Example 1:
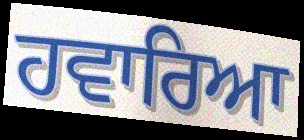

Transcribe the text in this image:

ਹਵਾਰਿਆ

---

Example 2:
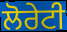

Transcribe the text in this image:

ਲੋਰੇਟੀ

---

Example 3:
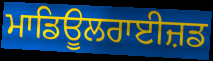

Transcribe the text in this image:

ਮਾਡਿਊਲਰਾਈਜ਼ਡ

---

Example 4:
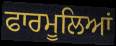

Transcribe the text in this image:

ਫਾਰਮੂਲਿਆਂ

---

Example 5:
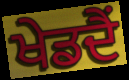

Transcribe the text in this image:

ਖੇਡਦੈਂ